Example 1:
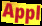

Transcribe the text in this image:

Appl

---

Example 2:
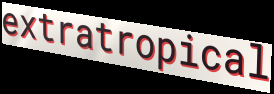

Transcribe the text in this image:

extratropical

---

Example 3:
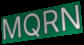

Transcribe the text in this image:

MQRN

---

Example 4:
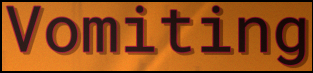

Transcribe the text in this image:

Vomiting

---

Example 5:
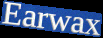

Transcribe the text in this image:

Earwax